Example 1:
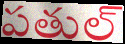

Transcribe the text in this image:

పతుల్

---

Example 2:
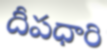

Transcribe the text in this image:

దీపధారి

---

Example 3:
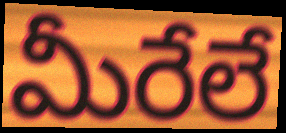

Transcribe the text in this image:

మీరేలే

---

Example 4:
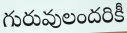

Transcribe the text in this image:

గురువులందరికీ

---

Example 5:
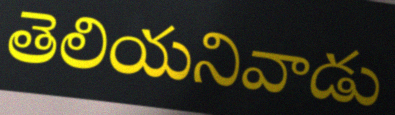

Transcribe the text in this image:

తెలియనివాడు